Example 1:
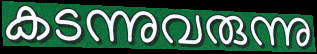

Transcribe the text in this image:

കടന്നുവരുന്നു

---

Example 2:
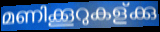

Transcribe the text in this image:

മണിക്കൂറുകള്ക്കു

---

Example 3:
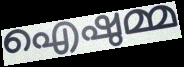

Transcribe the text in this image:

ഐഷുമ്മ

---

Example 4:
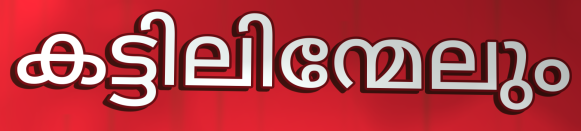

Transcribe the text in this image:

കട്ടിലിന്മേലും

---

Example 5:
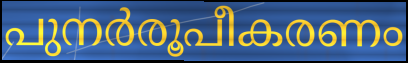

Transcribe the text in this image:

പുനർരൂപീകരണം